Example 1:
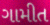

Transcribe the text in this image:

ગામીત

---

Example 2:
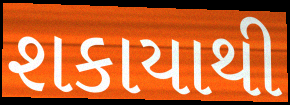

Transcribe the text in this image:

શકાયાથી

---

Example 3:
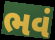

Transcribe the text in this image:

ભવં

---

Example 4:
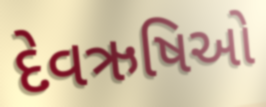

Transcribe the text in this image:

દેવઋષિઓ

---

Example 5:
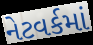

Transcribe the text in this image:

નેટવર્કમાં